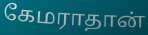
கேமராதான்